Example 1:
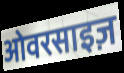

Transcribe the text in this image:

ओवरसाइज़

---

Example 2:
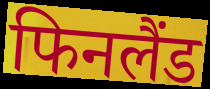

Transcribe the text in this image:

फिनलैंड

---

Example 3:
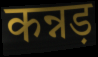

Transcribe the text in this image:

कन्नड़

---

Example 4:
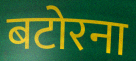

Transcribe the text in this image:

बटोरना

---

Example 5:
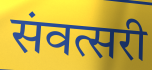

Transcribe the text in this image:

संवत्सरी